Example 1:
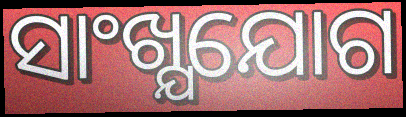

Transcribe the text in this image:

ସାଂଖ୍ଯଯୋଗ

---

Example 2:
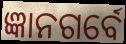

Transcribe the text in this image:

ଜ୍ଞାନଗର୍ବେ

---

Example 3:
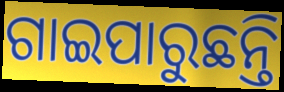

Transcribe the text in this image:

ଗାଇପାରୁଛନ୍ତି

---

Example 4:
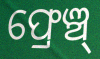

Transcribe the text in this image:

ଫ୍ରେଞ୍ଚ୍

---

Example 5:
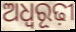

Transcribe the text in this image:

ଅଧ୍ଵରୂଢ଼ୀ